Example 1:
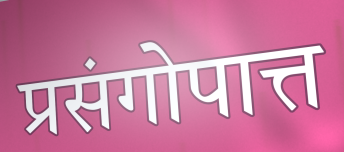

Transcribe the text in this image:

प्रसंगोपात्त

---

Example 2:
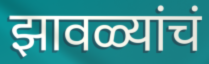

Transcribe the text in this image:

झावळ्यांचं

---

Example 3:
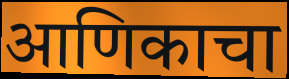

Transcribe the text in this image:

आणिकाचा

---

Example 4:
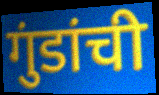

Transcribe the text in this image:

गुंडांची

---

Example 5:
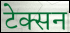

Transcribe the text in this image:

टेक्सन